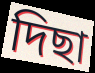
দিছা